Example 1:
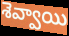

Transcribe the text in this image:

శెవ్వాయి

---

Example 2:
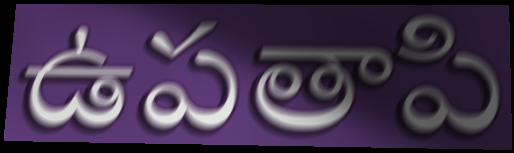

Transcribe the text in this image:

ఉపతాపి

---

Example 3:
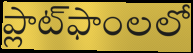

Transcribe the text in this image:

ప్లాట్‌ఫాంలలో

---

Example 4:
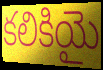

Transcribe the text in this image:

కలికియై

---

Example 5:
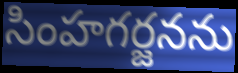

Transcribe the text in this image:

సింహగర్జనను